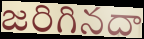
జరిగినదా